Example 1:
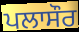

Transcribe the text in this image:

ਪਲਾਸੌਰ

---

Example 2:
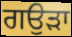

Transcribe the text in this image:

ਗਉੜਾ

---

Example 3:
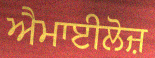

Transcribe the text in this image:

ਐਮਾਈਲੋਜ਼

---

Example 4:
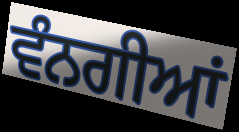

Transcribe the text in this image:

ਵੰਨਗੀਆਂ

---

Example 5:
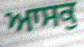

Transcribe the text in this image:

ਆਸਕੁ